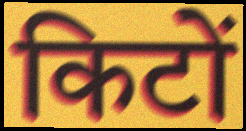
किटों